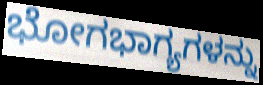
ಭೋಗಭಾಗ್ಯಗಳನ್ನು